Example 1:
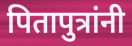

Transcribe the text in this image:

पितापुत्रांनी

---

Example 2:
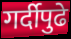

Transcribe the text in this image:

गर्दीपुढे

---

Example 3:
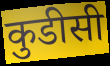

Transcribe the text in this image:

कुडीसी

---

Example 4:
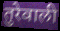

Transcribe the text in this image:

तुरेवाली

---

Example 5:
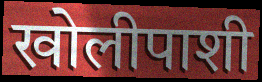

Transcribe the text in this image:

खोलीपाशी